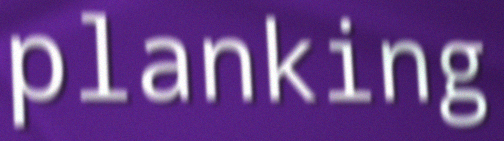
planking